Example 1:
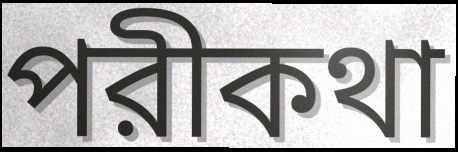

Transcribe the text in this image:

পরীকথা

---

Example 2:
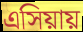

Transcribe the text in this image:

এসিয়ায়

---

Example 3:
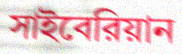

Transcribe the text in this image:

সাইবেরিয়ান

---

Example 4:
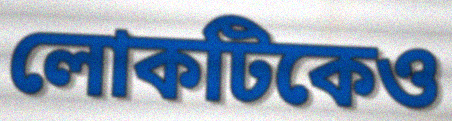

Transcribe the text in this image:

লোকটিকেও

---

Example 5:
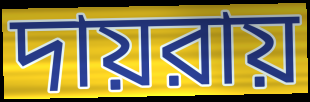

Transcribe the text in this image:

দায়রায়